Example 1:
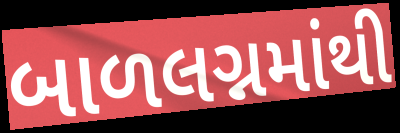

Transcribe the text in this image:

બાળલગ્નમાંથી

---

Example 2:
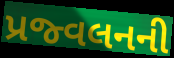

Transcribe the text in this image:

પ્રજ્વલનની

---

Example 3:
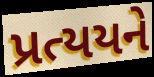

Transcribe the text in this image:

પ્રત્યયને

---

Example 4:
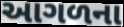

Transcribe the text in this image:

આગળના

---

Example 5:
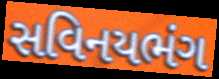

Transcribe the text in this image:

સવિનયભંગ